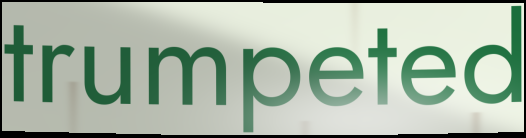
trumpeted